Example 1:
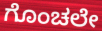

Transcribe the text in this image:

ಗೊಂಚಲೇ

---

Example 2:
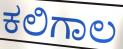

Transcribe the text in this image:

ಕಲಿಗಾಲ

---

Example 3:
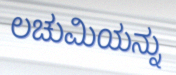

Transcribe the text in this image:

ಲಚುಮಿಯನ್ನು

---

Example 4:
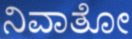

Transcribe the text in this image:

ನಿವಾತೋ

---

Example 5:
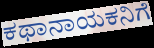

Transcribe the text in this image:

ಕಥಾನಾಯಕನಿಗೆ